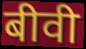
बीवी